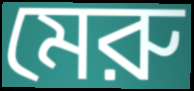
মেৰু